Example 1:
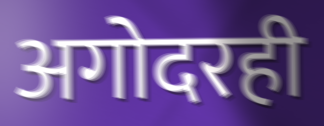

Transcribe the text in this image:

अगोदरही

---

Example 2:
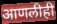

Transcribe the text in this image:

आणलीही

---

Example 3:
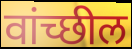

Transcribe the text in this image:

वांच्छील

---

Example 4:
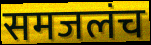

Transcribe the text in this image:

समजलंच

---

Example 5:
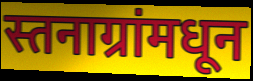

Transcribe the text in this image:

स्तनाग्रांमधून